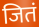
जितं